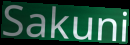
Sakuni